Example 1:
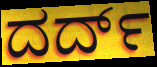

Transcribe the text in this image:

ದರ್ದ್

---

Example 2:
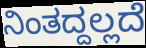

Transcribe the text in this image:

ನಿಂತದ್ದಲ್ಲದೆ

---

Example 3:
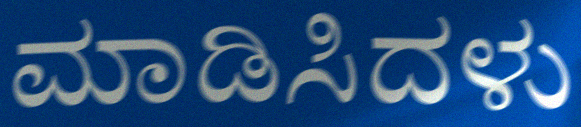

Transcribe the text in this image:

ಮಾಡಿಸಿದಳು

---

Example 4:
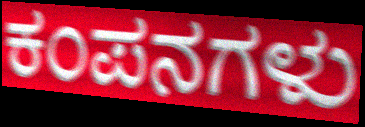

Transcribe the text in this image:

ಕಂಪನಗಳು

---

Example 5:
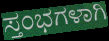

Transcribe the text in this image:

ಸ್ತಂಭಗಳಾಗಿ